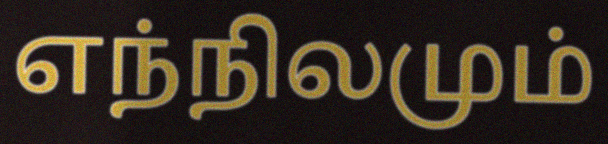
எந்நிலமும்